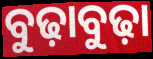
ବୁଢ଼ାବୁଢ଼ା